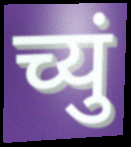
च्युं